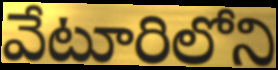
వేటూరిలోని